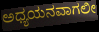
ಅಧ್ಯಯನವಾಗಲೀ